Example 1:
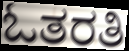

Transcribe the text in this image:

ಓತರತಿ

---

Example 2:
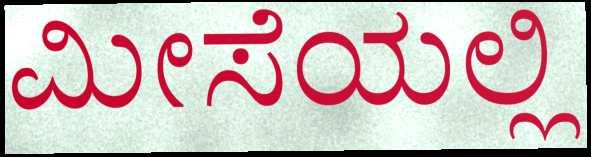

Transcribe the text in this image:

ಮೀಸೆಯಲ್ಲಿ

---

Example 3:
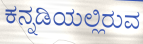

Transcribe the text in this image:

ಕನ್ನಡಿಯಲ್ಲಿರುವ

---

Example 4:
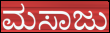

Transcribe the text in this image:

ಮಸಾಜು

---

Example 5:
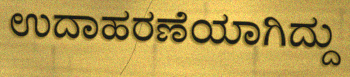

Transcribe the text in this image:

ಉದಾಹರಣೆಯಾಗಿದ್ದು